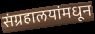
संग्रहालयांमधून